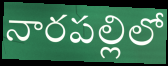
నారపల్లిలో